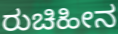
ರುಚಿಹೀನ